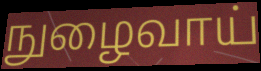
நுழைவாய்